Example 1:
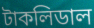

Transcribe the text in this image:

টাকলিডাল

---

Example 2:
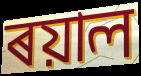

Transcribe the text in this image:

ৰয়াল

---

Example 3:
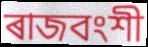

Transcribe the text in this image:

ৰাজবংশী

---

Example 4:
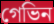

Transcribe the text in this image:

গেভিন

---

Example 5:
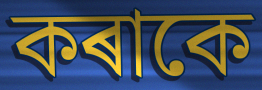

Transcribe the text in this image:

কৰাকে